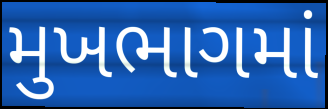
મુખભાગમાં